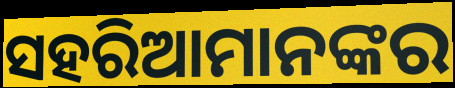
ସହରିଆମାନଙ୍କର